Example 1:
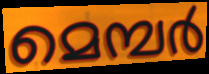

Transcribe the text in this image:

മെമ്പർ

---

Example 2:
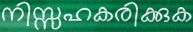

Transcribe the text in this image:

നിസ്സഹകരിക്കുക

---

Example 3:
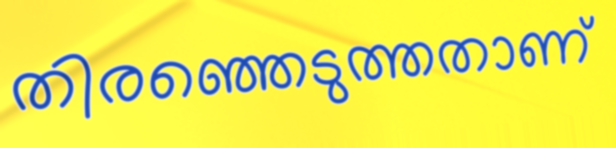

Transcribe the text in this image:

തിരഞ്ഞെടുത്തതാണ്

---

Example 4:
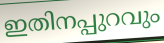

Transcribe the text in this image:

ഇതിനപ്പുറവും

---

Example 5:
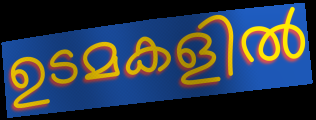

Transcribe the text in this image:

ഉടമകളിൽ